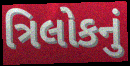
ત્રિલોકનું